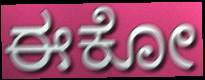
ಈಕೋ